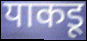
याकडू